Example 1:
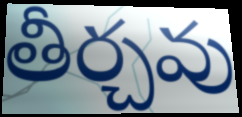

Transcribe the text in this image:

తీర్చవు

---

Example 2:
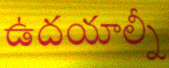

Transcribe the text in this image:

ఉదయాల్నీ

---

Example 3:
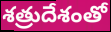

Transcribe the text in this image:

శత్రుదేశంతో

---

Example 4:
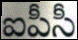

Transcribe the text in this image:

ఐపీసీ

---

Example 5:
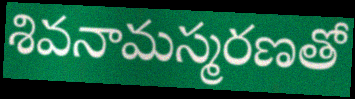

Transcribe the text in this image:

శివనామస్మరణతో